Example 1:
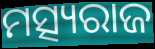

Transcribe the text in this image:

ମତ୍ସ୍ୟରାଜ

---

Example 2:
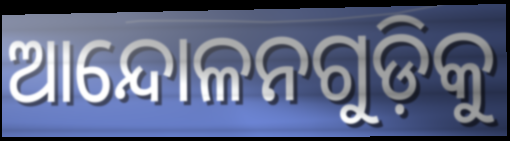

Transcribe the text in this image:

ଆନ୍ଦୋଳନଗୁଡ଼ିକୁ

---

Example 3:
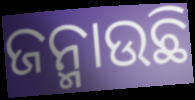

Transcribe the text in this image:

ଜନ୍ମାଉଛି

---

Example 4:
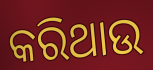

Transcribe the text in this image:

କରିଥାଉ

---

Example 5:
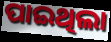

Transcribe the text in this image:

ପାଇଥିଲା